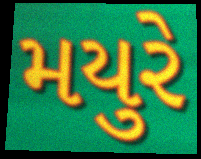
મયુરે